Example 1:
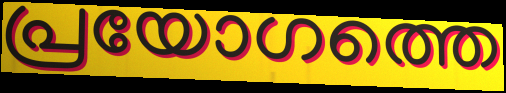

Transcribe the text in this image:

പ്രയോഗത്തെ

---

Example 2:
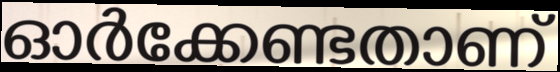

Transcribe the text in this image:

ഓർക്കേണ്ടതാണ്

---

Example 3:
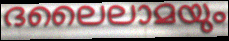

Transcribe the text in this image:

ദലൈലാമയും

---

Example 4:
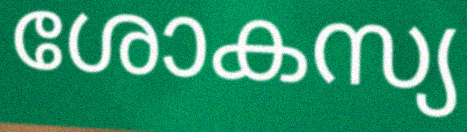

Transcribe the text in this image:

ശോകസ്യ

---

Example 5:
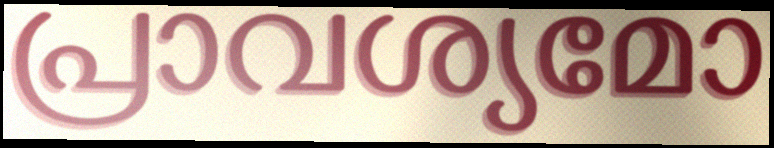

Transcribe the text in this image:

പ്രാവശ്യമോ